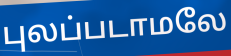
புலப்படாமலே